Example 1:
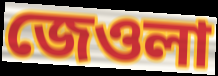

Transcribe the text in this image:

জেওলা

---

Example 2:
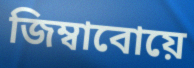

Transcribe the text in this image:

জিম্বাবোয়ে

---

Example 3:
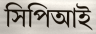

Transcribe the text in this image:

সিপিআই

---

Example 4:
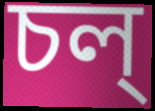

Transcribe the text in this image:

চল্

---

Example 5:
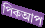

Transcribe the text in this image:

পিকআপ